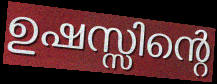
ഉഷസ്സിന്റെ